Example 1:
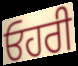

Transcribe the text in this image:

ਓਹਰੀ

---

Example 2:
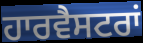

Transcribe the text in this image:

ਹਾਰਵੈਸਟਰਾਂ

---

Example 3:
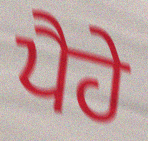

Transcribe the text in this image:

ਪੈਹੇ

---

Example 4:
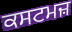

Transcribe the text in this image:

ਕਸਟਮਜ਼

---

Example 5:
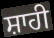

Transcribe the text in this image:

ਸ਼ਾਹੀ